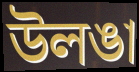
উলঙা